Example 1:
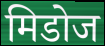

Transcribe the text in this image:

मिडोज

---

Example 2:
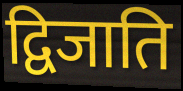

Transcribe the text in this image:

द्विजाति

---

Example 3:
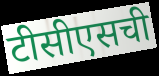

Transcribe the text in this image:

टीसीएसची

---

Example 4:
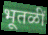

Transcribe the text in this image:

भूतळीं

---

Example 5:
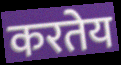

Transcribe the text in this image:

करतेय